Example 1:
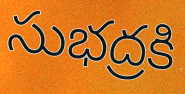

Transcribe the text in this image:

సుభద్రకి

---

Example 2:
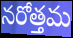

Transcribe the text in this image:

నరోత్తమ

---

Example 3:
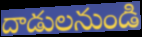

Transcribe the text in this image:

దాడులనుండి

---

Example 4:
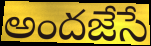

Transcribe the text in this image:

అందజేసే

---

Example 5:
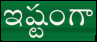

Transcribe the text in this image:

ఇష్టంగా